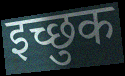
इच्छुक